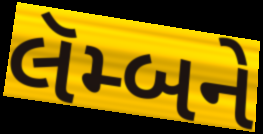
લૅમ્બને